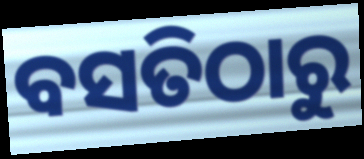
ବସତିଠାରୁ